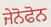
ਜੇਨੋਫੋਨ